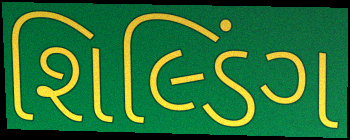
શિલ્ડિંગ